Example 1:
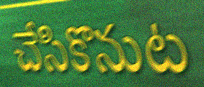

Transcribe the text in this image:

చేసికొనుట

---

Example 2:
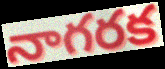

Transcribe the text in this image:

నాగరక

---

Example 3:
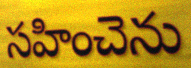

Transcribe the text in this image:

సహించెను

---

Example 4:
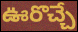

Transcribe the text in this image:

ఊరొచ్చే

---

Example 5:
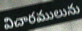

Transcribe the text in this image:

విచారములును